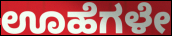
ಊಹೆಗಳೇ